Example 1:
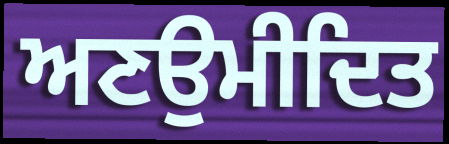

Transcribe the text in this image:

ਅਣਉਮੀਦਿਤ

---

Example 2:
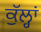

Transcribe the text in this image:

ਕੁੱਲ੍ਹਾਂ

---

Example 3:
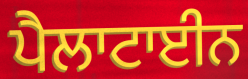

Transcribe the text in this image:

ਪੈਲਾਟਾਈਨ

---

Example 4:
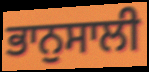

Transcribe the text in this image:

ਭਾਨੁਸਾਲੀ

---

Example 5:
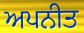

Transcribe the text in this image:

ਅਪਨੀਤ